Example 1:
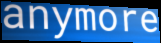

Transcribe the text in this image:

anymore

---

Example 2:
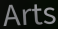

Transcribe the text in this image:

Arts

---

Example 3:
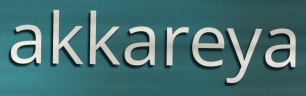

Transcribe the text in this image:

akkareya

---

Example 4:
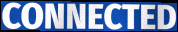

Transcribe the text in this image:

CONNECTED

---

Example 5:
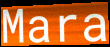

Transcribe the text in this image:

Mara